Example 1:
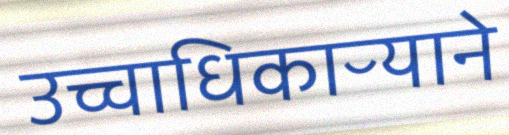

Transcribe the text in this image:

उच्चाधिकाऱ्याने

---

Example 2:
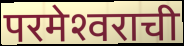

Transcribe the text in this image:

परमेश्वराची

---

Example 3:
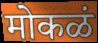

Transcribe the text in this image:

मोकळं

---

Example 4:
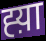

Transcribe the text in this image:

ह्य़ा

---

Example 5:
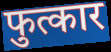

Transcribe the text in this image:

फुत्कार